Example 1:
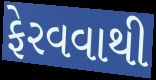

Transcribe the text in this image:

ફેરવવાથી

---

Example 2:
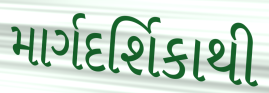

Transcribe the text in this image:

માર્ગદર્શિકાથી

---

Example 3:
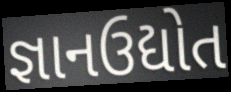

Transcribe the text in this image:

જ્ઞાનઉદ્યોત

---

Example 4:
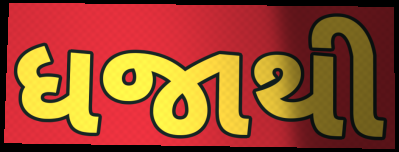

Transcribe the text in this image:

ધજાથી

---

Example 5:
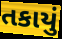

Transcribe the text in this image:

તકાયું